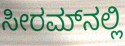
ಸೀರಮ್‌ನಲ್ಲಿ